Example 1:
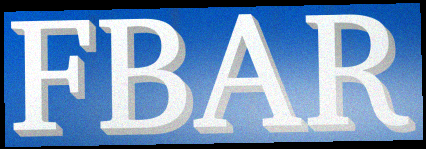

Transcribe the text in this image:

FBAR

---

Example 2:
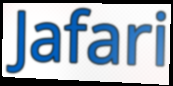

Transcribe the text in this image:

Jafari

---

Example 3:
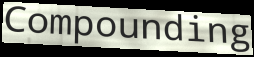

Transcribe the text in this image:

Compounding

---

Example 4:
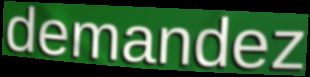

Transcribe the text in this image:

demandez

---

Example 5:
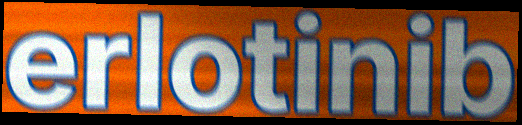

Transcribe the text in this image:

erlotinib